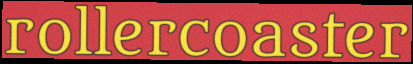
rollercoaster